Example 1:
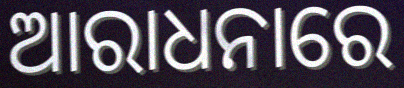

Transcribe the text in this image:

ଆରାଧନାରେ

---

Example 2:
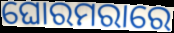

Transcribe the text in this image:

ଘୋରମରାରେ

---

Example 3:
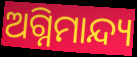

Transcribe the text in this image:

ଅଗ୍ନିମାନ୍ଦ୍ୟ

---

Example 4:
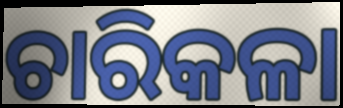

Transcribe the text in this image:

ଚାରିକଳା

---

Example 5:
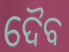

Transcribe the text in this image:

ଦୈବ